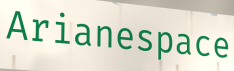
Arianespace